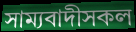
সাম্যবাদীসকল